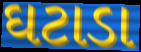
ઘટાડા